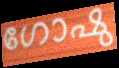
ഗോഷു